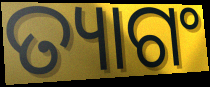
ତ୍ୟାଗଂ